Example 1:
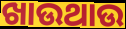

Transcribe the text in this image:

ଖାଉଥାଉ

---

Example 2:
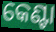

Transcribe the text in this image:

କେଣ୍ଟା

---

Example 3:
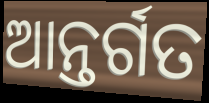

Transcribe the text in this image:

ଆନ୍ତର୍ଗତ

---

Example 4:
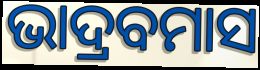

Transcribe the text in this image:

ଭାଦ୍ରବମାସ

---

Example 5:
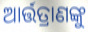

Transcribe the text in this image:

ଆର୍ତ୍ତତ୍ରାଣଙ୍କୁ